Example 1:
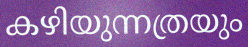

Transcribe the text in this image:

കഴിയുന്നത്രയും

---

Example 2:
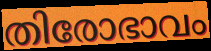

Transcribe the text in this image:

തിരോഭാവം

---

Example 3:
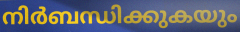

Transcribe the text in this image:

നിർബന്ധിക്കുകയും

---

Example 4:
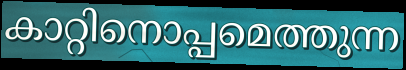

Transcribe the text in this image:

കാറ്റിനൊപ്പമെത്തുന്ന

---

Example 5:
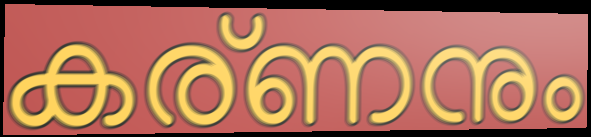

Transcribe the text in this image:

കര്ണനും